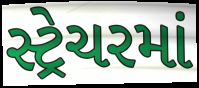
સ્ટ્રેચરમાં